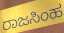
ರಾಜಸಿಂಹ